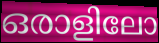
ഒരാളിലോ